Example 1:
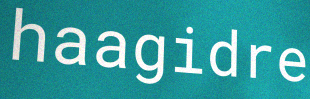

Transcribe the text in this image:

haagidre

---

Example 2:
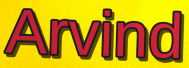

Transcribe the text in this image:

Arvind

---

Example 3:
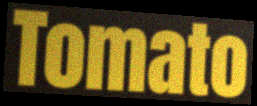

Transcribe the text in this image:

Tomato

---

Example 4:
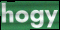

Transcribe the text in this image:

hogy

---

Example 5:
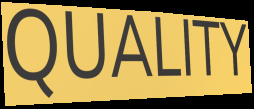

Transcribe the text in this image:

QUALITY